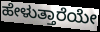
ಹೇಳುತ್ತಾರೆಯೇ